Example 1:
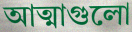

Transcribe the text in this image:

আত্মাগুলো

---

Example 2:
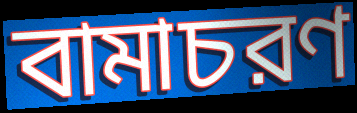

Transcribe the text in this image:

বামাচরণ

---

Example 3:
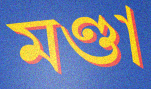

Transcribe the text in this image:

মণ্ডা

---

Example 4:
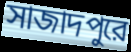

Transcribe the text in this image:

সাজাদপুরে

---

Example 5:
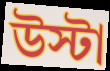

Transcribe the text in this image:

উস্টা